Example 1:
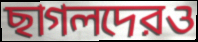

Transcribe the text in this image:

ছাগলদেরও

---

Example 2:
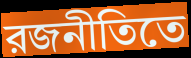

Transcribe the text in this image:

রজনীতিতে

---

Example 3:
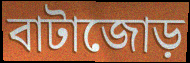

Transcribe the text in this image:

বাটাজোড়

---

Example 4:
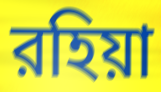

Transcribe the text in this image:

রহিয়া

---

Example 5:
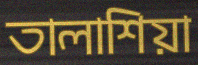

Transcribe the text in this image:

তালাশিয়া